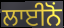
ਲਾਈਨੋਂ